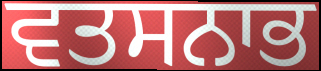
ਵਤਸਨਾਭ